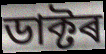
ডাক্টৰ